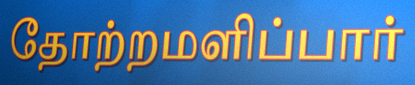
தோற்றமளிப்பார்